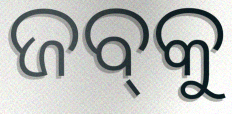
ଜବ୍‍କୁ